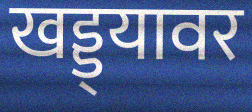
खड्ड्यावर